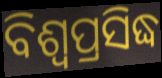
ବିଶ୍ଵପ୍ରସିଦ୍ଧ